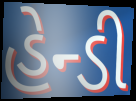
હેન્ડી